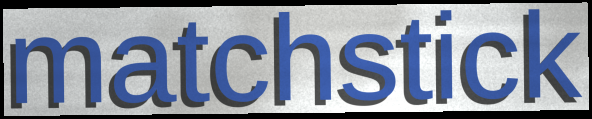
matchstick